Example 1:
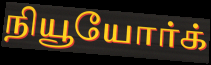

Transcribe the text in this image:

நியூயோர்க்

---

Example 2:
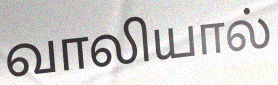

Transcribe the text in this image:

வாலியால்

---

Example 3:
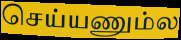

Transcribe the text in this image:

செய்யணும்ல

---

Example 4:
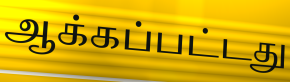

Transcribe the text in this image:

ஆக்கப்பட்டது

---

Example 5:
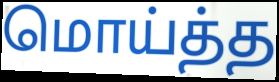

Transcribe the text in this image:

மொய்த்த